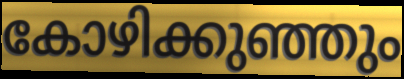
കോഴിക്കുഞ്ഞും